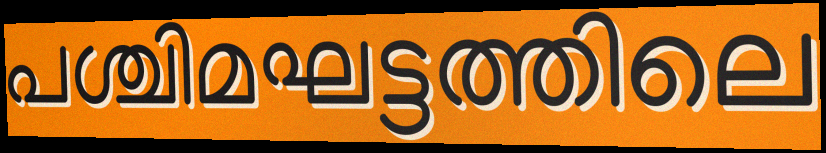
പശ്ചിമഘട്ടത്തിലെ